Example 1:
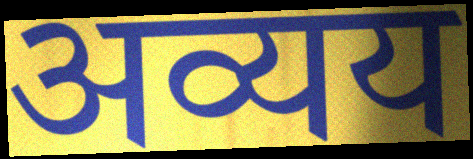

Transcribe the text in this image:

अव्यय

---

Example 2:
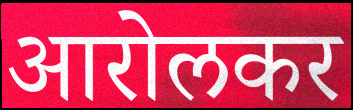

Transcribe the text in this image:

आरोलकर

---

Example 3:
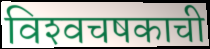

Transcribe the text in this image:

विश्वचषकाची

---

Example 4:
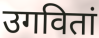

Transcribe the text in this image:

उगवितां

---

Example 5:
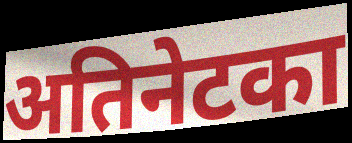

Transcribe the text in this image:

अतिनेटका